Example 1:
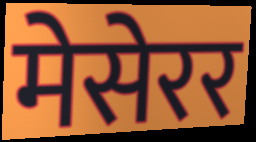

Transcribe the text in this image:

मेसेरर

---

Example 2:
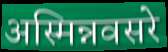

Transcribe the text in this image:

अस्मिन्नवसरे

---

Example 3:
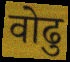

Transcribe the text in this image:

वोढु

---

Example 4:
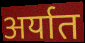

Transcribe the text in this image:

अर्यात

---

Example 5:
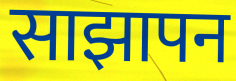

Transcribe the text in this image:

साझापन